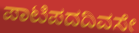
ಪಾಟಿಪದದಿವಸೇ